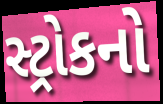
સ્ટ્રોકનો